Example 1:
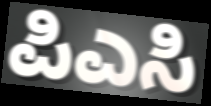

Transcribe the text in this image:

ಪಿಎಸಿ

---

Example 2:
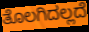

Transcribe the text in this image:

ತೊಲಗಿದಲ್ಲದೆ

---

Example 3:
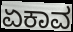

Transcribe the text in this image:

ಏಕಾವ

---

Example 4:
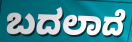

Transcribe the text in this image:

ಬದಲಾದೆ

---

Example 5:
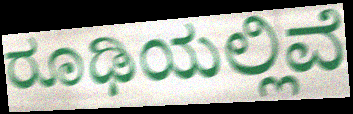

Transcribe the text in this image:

ರೂಢಿಯಲ್ಲಿವೆ